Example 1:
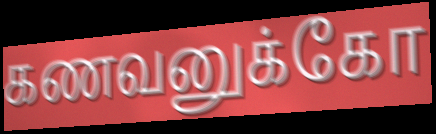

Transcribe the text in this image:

கணவனுக்கோ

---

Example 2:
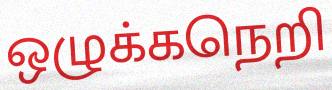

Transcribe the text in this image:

ஒழுக்கநெறி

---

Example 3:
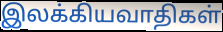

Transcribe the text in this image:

இலக்கியவாதிகள்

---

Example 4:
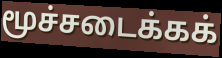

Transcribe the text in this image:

மூச்சடைக்கக்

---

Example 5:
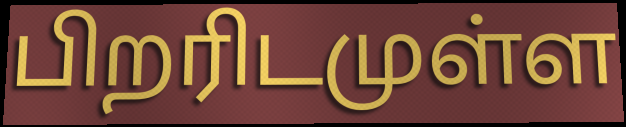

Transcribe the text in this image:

பிறரிடமுள்ள